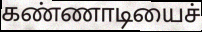
கண்ணாடியைச்